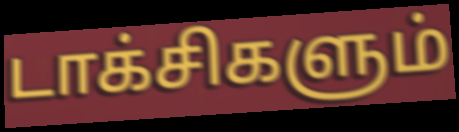
டாக்சிகளும்